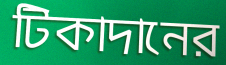
টিকাদানের